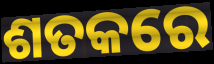
ଶତକରେ